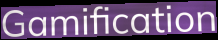
Gamification